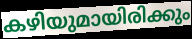
കഴിയുമായിരിക്കും